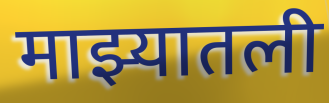
माझ्यातली